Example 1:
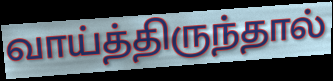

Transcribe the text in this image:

வாய்த்திருந்தால்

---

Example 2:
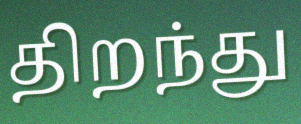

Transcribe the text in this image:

திறந்து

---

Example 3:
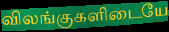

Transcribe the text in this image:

விலங்குகளிடையே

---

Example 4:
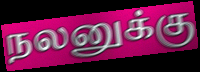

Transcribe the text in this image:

நலனுக்கு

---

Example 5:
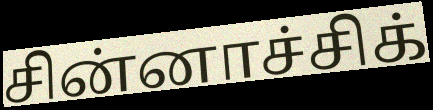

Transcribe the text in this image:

சின்னாச்சிக்